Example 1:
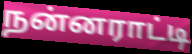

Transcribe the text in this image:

நன்னராட்டி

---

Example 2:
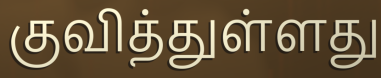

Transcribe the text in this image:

குவித்துள்ளது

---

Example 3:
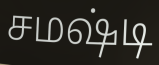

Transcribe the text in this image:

சமஷ்டி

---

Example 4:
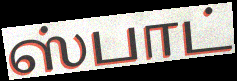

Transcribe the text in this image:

ஸ்பாட்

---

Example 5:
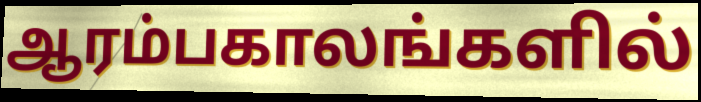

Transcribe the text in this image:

ஆரம்பகாலங்களில்